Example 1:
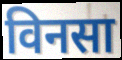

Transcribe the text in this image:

विनसा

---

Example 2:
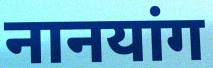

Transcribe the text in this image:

नानयांग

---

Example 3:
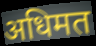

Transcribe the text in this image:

अधिमत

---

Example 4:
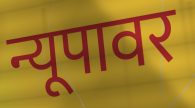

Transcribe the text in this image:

न्यूपावर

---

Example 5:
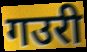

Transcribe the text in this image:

गउरी